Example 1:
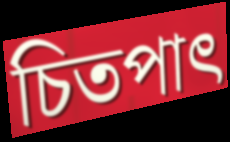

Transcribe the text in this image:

চিতপাৎ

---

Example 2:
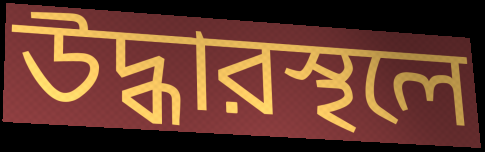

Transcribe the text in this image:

উদ্ধারস্থলে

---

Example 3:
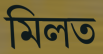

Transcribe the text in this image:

মিলত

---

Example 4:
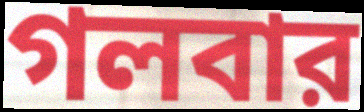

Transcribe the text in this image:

গলবার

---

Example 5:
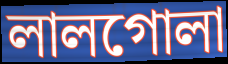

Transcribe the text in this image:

লালগোলা